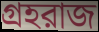
গ্রহরাজ